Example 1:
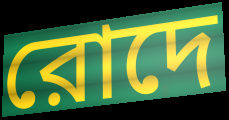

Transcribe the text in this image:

রোদে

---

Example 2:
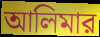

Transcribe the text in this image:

আলিমার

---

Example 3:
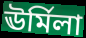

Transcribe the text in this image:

ঊর্মিলা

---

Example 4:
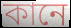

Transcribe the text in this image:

কানে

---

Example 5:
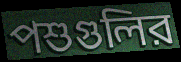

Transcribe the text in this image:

পশুগুলির